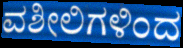
ವಶೀಲಿಗಳಿಂದ